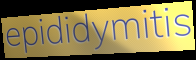
epididymitis